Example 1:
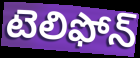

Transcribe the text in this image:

టెలిఫోన్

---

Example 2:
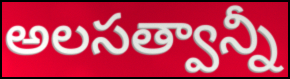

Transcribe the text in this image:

అలసత్వాన్నీ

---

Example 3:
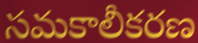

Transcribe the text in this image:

సమకాలీకరణ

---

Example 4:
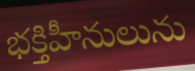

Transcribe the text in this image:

భక్తిహీనులును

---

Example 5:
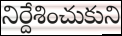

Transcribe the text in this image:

నిర్దేశించుకుని